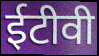
ईटीवी